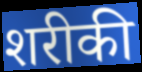
शरीकी